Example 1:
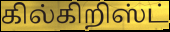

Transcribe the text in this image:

கில்கிறிஸ்ட்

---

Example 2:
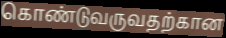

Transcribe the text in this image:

கொண்டுவருவதற்கான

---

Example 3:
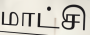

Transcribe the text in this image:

மாட்சி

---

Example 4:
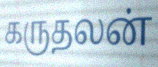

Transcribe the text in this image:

கருதலன்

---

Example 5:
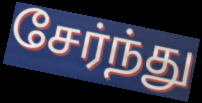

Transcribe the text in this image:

சேர்ந்து